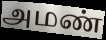
அமண்